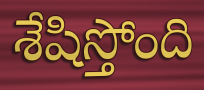
శేషిస్తోంది